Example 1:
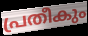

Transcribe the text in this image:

പ്രതീകും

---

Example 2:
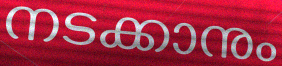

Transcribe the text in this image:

നടക്കാനും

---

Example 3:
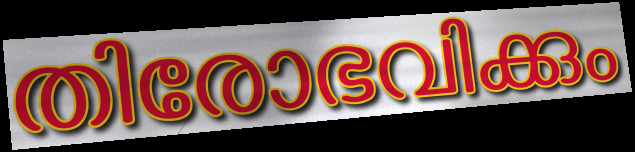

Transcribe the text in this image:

തിരോഭവിക്കും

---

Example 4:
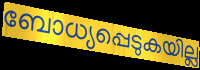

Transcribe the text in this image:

ബോധ്യപ്പെടുകയില്ല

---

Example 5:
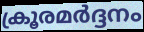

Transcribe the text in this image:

ക്രൂരമർദ്ദനം